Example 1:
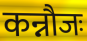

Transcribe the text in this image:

कन्नौजः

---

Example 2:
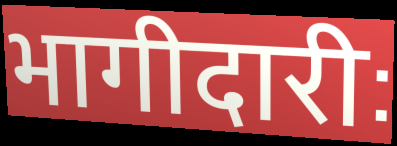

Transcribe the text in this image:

भागीदारीः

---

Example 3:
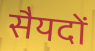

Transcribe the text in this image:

सैयदों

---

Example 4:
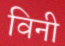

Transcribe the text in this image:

विनी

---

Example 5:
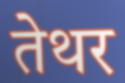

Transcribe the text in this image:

तेथर